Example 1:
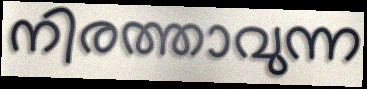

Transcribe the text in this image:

നിരത്താവുന്ന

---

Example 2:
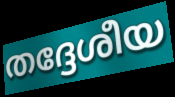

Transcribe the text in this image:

തദ്ദേശീയ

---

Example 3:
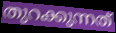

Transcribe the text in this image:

തുറക്കുന്നത്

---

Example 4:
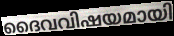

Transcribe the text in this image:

ദൈവവിഷയമായി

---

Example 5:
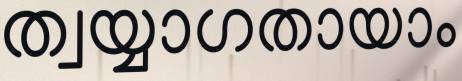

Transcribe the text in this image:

ത്വയ്യാഗതായാം